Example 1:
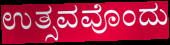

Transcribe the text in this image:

ಉತ್ಸವವೊಂದು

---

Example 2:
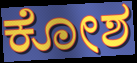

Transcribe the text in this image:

ಕೋಶ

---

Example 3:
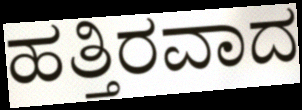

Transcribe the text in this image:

ಹತ್ತಿರವಾದ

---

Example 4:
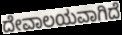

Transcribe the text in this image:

ದೇವಾಲಯವಾಗಿದೆ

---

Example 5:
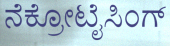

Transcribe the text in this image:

ನೆಕ್ರೋಟೈಸಿಂಗ್